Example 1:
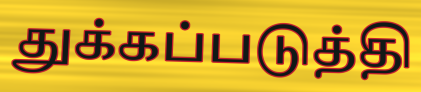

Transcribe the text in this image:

துக்கப்படுத்தி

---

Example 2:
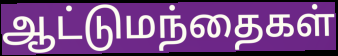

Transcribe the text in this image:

ஆட்டுமந்தைகள்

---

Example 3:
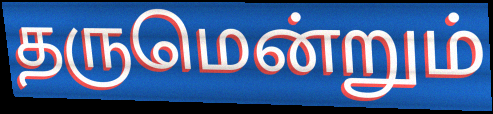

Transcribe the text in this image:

தருமென்றும்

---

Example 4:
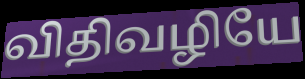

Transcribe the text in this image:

விதிவழியே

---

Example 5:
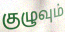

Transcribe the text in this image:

குழுவும்